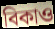
বিকাও